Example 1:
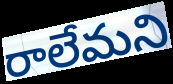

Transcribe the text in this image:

రాలేమని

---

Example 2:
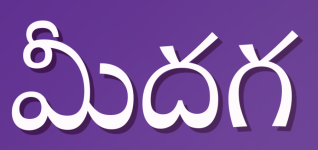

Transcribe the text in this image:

మీదగ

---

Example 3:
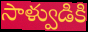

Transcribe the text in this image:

సాళ్వుడికి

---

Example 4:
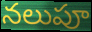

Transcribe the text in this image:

నలుపూ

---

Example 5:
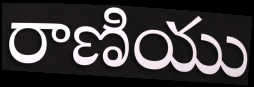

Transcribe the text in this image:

రాణియు